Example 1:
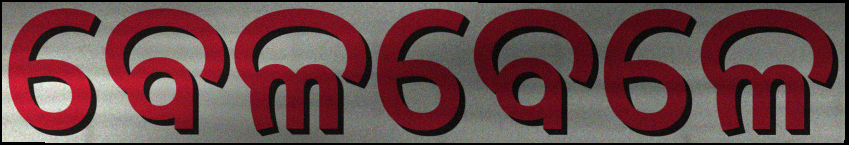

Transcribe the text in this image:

ବେଳବେଳେ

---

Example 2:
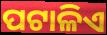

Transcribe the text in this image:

ପଟାଳିଏ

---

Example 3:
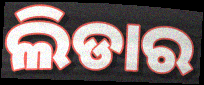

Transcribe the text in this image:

ଲିଡାର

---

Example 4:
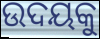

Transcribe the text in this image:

ଉଦୟକୁ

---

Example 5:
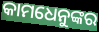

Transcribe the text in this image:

କାମଧେନୁଙ୍କର